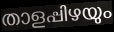
താളപ്പിഴയും